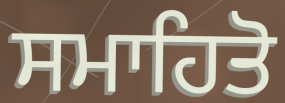
ਸਮਾਹਿਤੋ